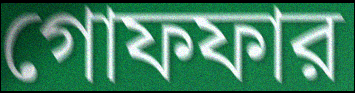
গোফফার